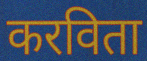
करविता